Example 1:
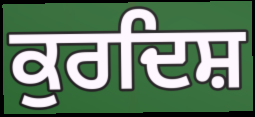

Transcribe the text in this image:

ਕੁਰਦਿਸ਼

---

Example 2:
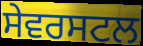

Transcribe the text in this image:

ਸੇਵਰਸਟਲ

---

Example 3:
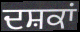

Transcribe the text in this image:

ਦਸ਼ਕਾਂ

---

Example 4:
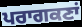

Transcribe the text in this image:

ਪਰਾਗਕਣਾਂ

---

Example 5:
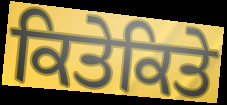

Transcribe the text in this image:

ਕਿਤੇਕਿਤੇ